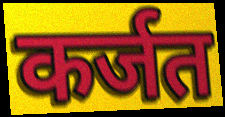
कर्जत